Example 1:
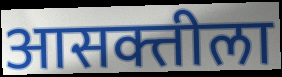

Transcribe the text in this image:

आसक्तीला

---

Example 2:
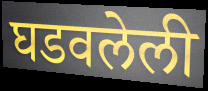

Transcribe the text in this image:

घडवलेली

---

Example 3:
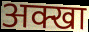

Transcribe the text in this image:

अक्खा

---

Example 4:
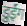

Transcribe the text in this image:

डुईंग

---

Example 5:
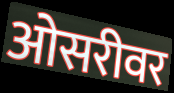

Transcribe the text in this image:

ओसरीवर